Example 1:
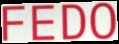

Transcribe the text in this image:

FEDO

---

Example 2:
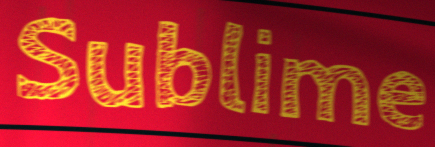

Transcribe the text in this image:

Sublime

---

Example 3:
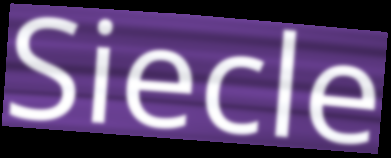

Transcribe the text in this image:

Siecle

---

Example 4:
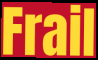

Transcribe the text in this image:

Frail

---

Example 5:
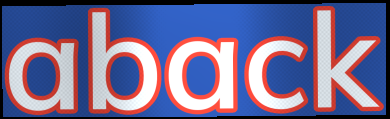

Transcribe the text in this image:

aback